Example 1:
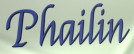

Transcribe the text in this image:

Phailin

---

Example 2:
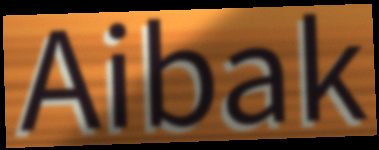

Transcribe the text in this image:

Aibak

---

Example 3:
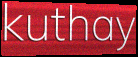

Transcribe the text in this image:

kuthay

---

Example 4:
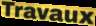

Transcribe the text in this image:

Travaux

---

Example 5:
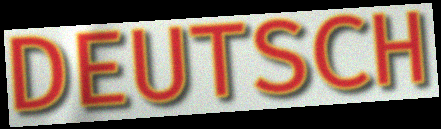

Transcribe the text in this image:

DEUTSCH